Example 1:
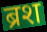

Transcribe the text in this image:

ब्रश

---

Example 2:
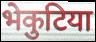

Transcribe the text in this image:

भेकुटिया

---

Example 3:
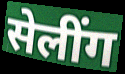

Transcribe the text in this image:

सेलींग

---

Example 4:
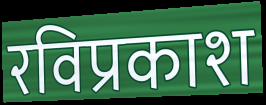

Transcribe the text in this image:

रविप्रकाश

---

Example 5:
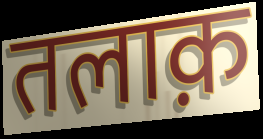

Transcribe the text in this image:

तलाक़